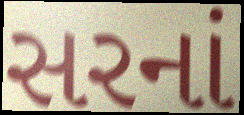
સરનાં